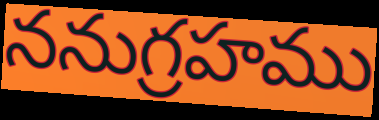
ననుగ్రహము